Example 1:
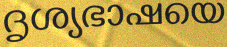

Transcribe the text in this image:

ദൃശ്യഭാഷയെ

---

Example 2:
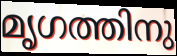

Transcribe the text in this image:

മൃഗത്തിനു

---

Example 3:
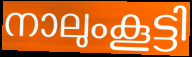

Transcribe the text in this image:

നാലുംകൂട്ടി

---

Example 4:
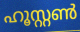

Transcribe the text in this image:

ഹൂസ്റ്റൺ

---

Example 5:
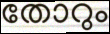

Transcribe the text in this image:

തോറും